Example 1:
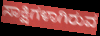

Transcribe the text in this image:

ಸಾಕ್ಷಿಗಳಾಗಿರುವ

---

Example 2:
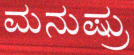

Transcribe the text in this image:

ಮನುಷ್ರು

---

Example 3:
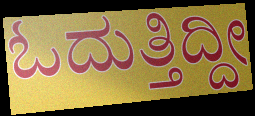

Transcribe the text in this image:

ಓದುತ್ತಿದ್ದೀ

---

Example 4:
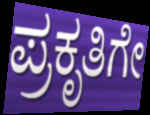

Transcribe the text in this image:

ಪ್ರಕೃತಿಗೇ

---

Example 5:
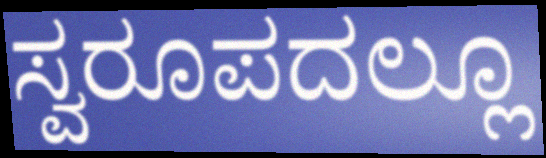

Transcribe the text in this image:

ಸ್ವರೂಪದಲ್ಲೂ